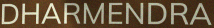
DHARMENDRA